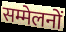
सम्मेलनों